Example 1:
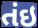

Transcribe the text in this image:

તંઇ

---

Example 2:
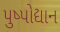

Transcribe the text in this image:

પુષ્પોદ્યાન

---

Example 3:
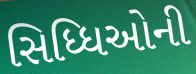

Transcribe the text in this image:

સિધ્ધિઓની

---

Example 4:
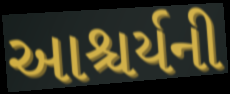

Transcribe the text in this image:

આશ્ચર્યની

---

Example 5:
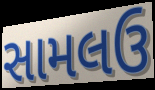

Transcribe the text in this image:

સામલઉ